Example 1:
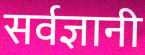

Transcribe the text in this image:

सर्वज्ञानी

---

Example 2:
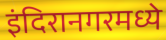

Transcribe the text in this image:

इंदिरानगरमध्ये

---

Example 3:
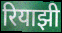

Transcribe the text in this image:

रियाझी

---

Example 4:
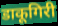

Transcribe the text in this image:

डाकूगिरी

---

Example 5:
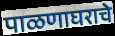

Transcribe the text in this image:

पाळणाघराचे